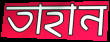
তাহান